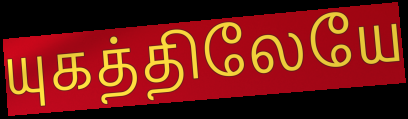
யுகத்திலேயே